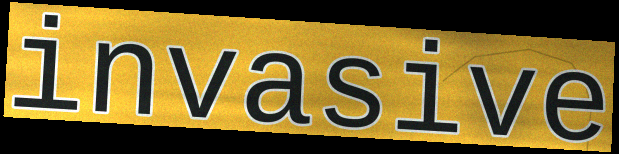
invasive